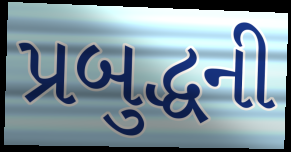
પ્રબુદ્ધની